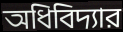
অধিবিদ্যার